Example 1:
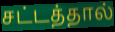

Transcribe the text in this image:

சட்டத்தால்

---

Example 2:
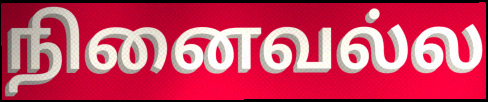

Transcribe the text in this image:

நினைவல்ல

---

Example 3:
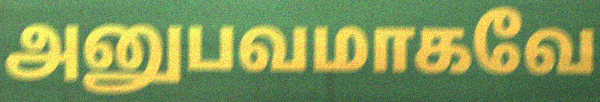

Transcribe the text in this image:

அனுபவமாகவே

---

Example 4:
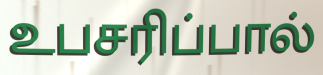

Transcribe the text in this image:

உபசரிப்பால்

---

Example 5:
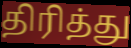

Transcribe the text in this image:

திரித்து